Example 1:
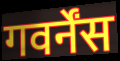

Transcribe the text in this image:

गवर्नेंस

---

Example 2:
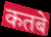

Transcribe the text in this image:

कतबे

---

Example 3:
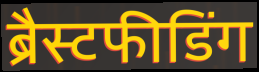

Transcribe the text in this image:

ब्रैस्टफीडिंग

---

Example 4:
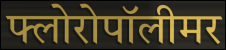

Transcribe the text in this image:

फ्लोरोपॉलीमर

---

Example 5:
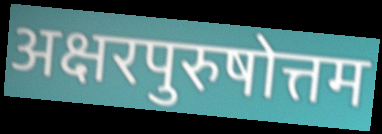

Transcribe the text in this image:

अक्षरपुरुषोत्तम